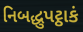
નિબદ્ધુપટ્ઠાકં